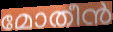
മോതീൻ